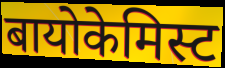
बायोकेमिस्ट